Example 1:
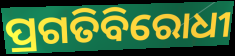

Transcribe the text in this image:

ପ୍ରଗତିବିରୋଧୀ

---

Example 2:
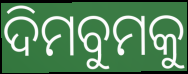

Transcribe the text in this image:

ଦିମବୁମକୁ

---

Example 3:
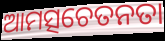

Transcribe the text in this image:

ଆମତ୍ସଚେତନତା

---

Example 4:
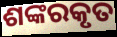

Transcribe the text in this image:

ଶଙ୍କରକୃତ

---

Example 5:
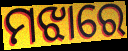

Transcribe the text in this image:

ମଝାରେ